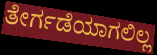
ತೇರ್ಗಡೆಯಾಗಲಿಲ್ಲ